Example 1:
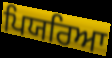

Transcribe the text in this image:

ਪਿਯਰਿਆ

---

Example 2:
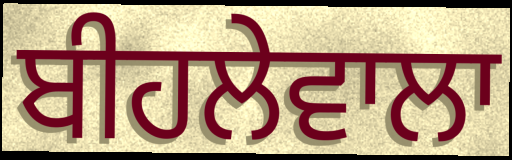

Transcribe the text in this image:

ਬੀਹਲੇਵਾਲਾ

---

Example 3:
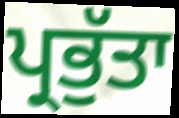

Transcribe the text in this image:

ਪ੍ਰਭੁੱਤਾ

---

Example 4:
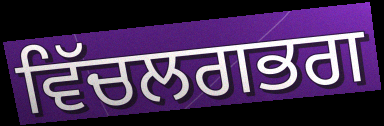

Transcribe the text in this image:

ਵਿੱਚਲਗਭਗ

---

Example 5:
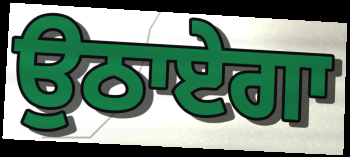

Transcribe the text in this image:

ਉਠਾਏਗਾ